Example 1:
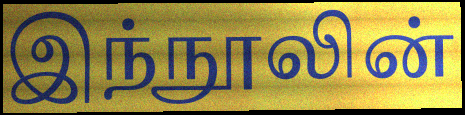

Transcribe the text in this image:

இந்நூலின்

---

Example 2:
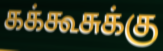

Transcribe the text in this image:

கக்கூசுக்கு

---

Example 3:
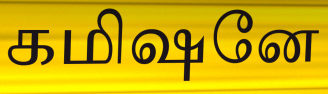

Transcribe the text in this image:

கமிஷனே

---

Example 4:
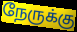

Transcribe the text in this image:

நேருக்கு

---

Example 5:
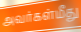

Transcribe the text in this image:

அவர்கள்மீது